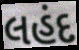
લહંદ